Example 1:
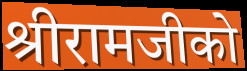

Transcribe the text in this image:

श्रीरामजीको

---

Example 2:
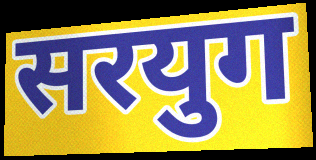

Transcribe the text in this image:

सरयुग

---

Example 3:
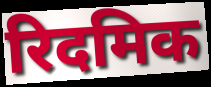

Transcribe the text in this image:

रिदमिक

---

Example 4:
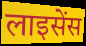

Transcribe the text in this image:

लाइसेंस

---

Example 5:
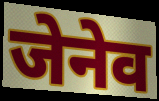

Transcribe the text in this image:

जेनेव